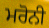
ਮਰੋਨੀ